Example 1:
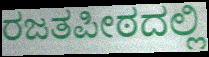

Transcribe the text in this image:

ರಜತಪೀಠದಲ್ಲಿ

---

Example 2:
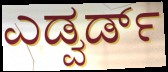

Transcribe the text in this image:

ಎಡ್ವರ್ಡ್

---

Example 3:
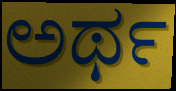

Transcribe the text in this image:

ಅರ್ಥ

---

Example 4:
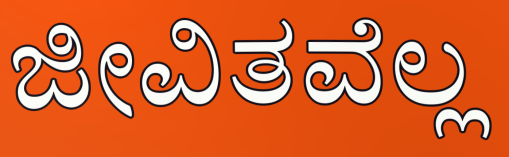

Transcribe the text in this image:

ಜೀವಿತವೆಲ್ಲ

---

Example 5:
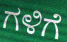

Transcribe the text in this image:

ಗಳಿಗೆ